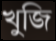
খুজি